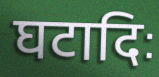
घटादिः